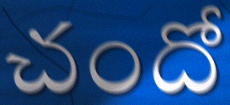
చందో